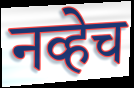
नव्हेच